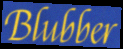
Blubber